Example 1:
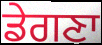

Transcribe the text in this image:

ਡੇਗਣਾ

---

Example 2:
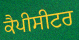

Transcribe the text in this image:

ਕੈਪੀਸੀਟਰ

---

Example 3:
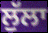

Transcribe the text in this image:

ਲੁੱਲਾ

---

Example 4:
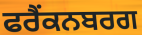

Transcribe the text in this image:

ਫਰੈਂਕਨਬਰਗ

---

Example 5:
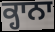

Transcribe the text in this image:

ਕ੍ਹਾਨਾ